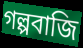
গল্পবাজি